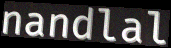
nandlal